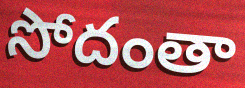
సోదంతా